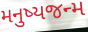
મનુષ્યજન્મ